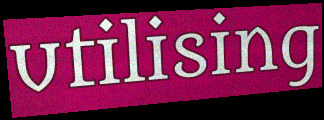
utilising